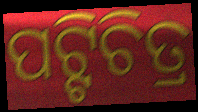
ପଟ୍ଟିଚିତ୍ର